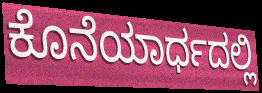
ಕೊನೆಯಾರ್ಧದಲ್ಲಿ